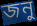
জনু